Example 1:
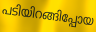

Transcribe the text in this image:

പടിയിറങ്ങിപ്പോയ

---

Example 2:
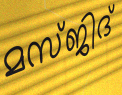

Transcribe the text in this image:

മസ്ജിദ്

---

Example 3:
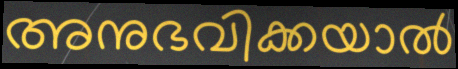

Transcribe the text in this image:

അനുഭവിക്കയാൽ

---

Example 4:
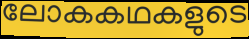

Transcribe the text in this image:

ലോകകഥകളുടെ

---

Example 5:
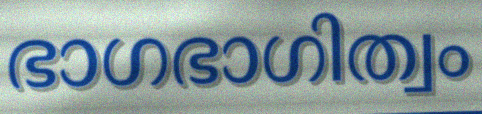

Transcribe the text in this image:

ഭാഗഭാഗിത്വം